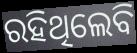
ରହିଥିଲେବି